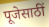
पूजेसाठीं